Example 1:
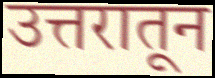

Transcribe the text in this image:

उत्तरातून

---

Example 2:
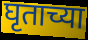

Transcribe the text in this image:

घृताच्या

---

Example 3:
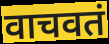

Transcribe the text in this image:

वाचवतं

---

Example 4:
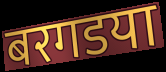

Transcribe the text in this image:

बरगडया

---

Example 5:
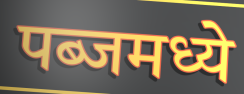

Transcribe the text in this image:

पब्जमध्ये